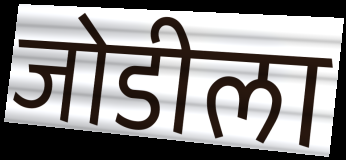
जोडीला